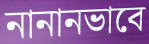
নানানভাবে